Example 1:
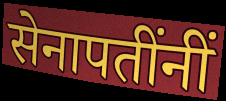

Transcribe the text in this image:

सेनापतींनीं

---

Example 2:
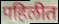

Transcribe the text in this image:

पहिलीत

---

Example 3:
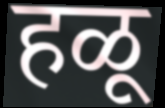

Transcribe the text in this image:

हळू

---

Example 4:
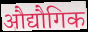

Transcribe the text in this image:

औद्यौगिक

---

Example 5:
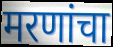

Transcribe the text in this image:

मरणांचा